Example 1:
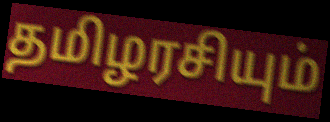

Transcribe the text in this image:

தமிழரசியும்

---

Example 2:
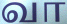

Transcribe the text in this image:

வா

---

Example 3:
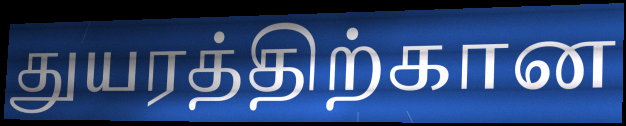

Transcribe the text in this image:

துயரத்திற்கான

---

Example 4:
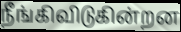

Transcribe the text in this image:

நீங்கிவிடுகின்றன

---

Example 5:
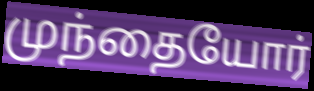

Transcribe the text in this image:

முந்தையோர்